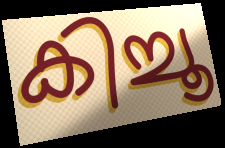
കിച്ചൂ